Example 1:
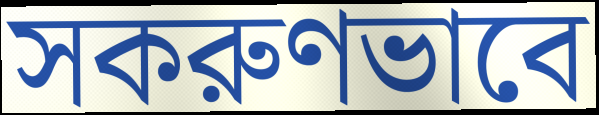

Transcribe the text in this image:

সকরুণভাবে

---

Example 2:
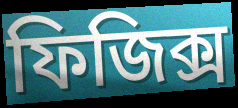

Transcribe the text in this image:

ফিজিক্স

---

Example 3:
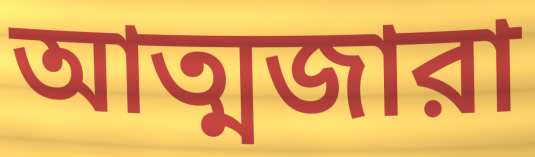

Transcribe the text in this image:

আত্মজারা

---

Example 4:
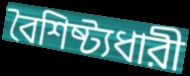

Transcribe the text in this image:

বৈশিষ্ট্যধারী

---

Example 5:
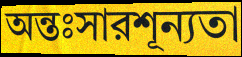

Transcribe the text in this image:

অন্তঃসারশূন্যতা